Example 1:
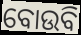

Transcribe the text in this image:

ବୋଉବି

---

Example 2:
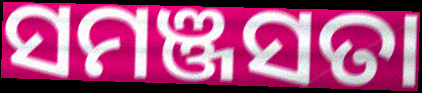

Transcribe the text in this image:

ସମଞ୍ଜସତା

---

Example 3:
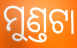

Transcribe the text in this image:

ମୁଣ୍ତଟା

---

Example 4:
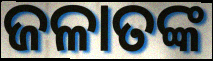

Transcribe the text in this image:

ଜଳାତଙ୍କ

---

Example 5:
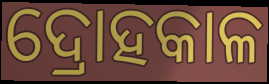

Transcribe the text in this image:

ଦ୍ରୋହକାଳ